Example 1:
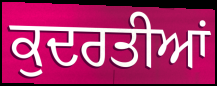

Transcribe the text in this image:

ਕੁਦਰਤੀਆਂ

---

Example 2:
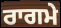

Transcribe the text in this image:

ਰਾਗਮੇ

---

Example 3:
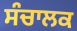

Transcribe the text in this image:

ਸੰਚਾਲਕ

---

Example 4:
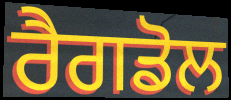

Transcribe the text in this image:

ਰੈਗਡੋਲ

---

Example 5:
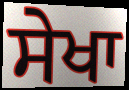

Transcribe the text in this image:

ਸੇਖਾ